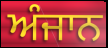
ਅੰਜਾਨ